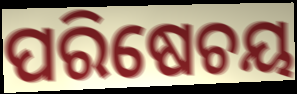
ପରିଷେଚୟ